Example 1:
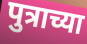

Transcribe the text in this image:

पुत्राच्या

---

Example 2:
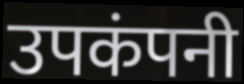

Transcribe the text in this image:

उपकंपनी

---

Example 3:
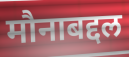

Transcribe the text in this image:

मौनाबद्दल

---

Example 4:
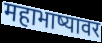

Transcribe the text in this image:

महाभाष्यावर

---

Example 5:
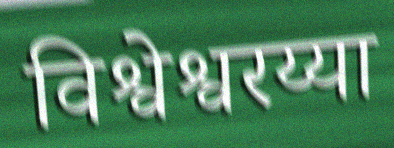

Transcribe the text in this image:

विश्वेश्वरय्या